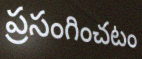
ప్రసంగించటం